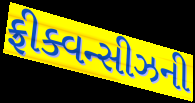
ફ્રીક્વન્સીઝની